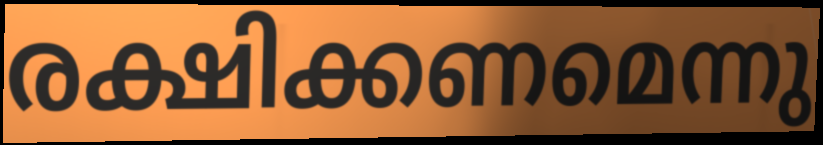
രക്ഷിക്കണമെന്നു